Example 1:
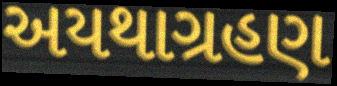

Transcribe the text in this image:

અયથાગ્રહણ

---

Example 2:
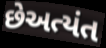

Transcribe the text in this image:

છેઅત્યંત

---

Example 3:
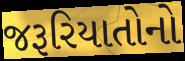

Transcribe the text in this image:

જરૂરિયાતોનો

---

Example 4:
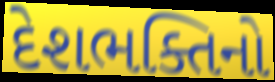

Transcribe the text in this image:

દેશભક્તિનો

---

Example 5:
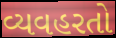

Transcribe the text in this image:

વ્યવહરતો